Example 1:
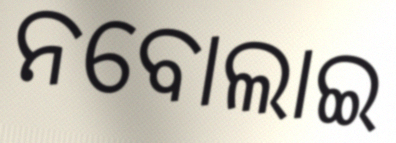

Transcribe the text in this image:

ନବୋଲାଇ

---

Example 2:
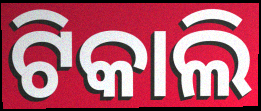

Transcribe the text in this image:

ଟିକାଲି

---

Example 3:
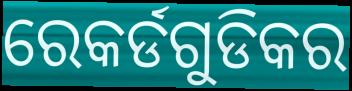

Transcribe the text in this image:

ରେକର୍ଡଗୁଡିକର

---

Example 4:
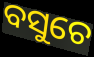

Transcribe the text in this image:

ବସୁଚେ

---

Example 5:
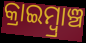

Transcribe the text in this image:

କ୍ରାଇମ୍ବ୍ରାଞ୍ଚ